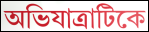
অভিযাত্রাটিকে